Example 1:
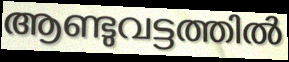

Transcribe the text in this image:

ആണ്ടുവട്ടത്തിൽ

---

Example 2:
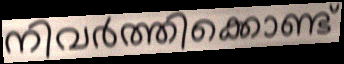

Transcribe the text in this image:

നിവർത്തിക്കൊണ്ട്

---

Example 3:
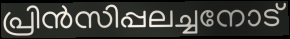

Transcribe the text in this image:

പ്രിൻസിപ്പലച്ചനോട്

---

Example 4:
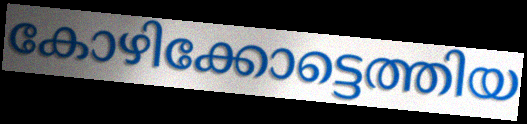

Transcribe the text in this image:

കോഴിക്കോട്ടെത്തിയ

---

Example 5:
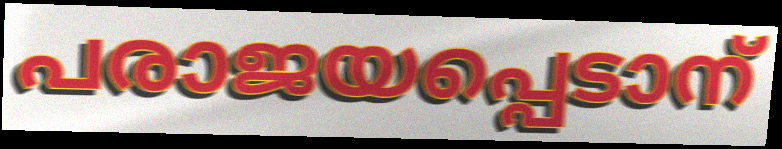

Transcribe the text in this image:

പരാജയപ്പെടാന്